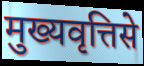
मुख्यवृत्तिसे